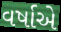
વર્ષાએ